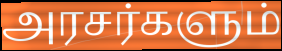
அரசர்களும்